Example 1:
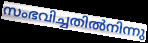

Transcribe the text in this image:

സംഭവിച്ചതിൽനിന്നു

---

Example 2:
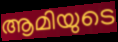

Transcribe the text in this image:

ആമിയുടെ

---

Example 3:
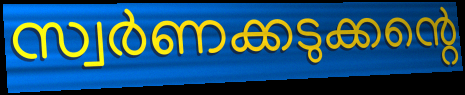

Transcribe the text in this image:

സ്വർണക്കടുക്കന്റെ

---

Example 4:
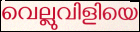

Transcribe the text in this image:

വെല്ലുവിളിയെ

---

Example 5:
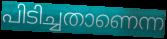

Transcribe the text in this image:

പിടിച്ചതാണെന്ന